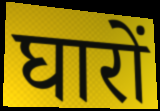
घारों